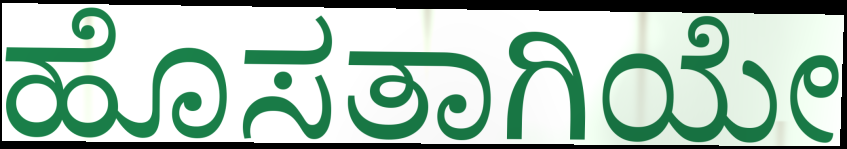
ಹೊಸತಾಗಿಯೇ